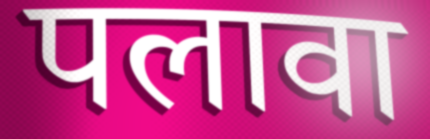
पलावा